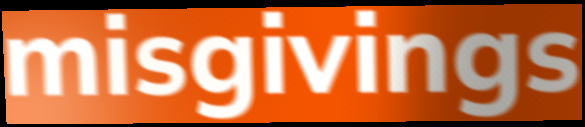
misgivings